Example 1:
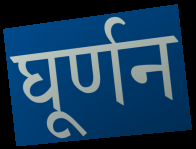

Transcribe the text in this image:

घूर्णन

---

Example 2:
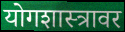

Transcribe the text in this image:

योगशास्त्रावर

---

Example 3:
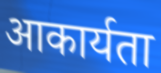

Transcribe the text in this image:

आकार्यता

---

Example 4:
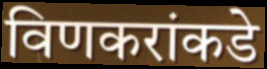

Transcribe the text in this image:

विणकरांकडे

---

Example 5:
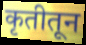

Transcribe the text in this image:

कृतीतून